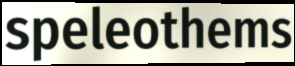
speleothems